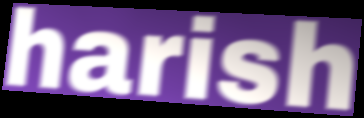
harish